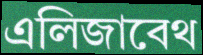
এলিজাবেথ